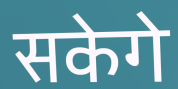
सकेगे